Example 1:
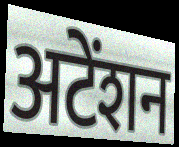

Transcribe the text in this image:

अटेंशन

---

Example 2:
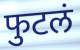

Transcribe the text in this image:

फुटलं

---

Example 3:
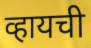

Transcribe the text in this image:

व्हायची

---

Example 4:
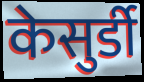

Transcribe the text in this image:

केसुर्डी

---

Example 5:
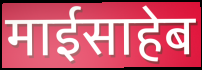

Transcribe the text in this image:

माईसाहेब